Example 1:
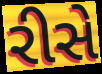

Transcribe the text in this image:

રીસે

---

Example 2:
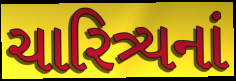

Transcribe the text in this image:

ચારિત્ર્યનાં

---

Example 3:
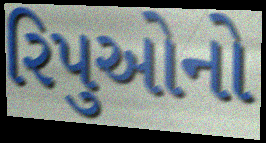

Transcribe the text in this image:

રિપુઓનો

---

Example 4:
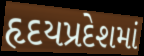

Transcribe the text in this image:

હૃદયપ્રદેશમાં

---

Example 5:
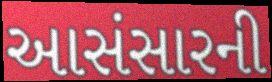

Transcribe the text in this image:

આસંસારની